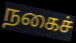
நகைச்